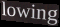
lowing